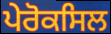
ਪੇਰੋਕਸਿਲ